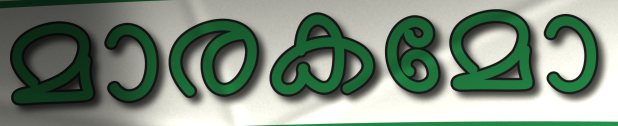
മാരകമോ